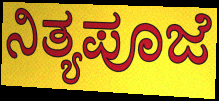
ನಿತ್ಯಪೂಜೆ